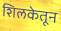
शिलकेतून